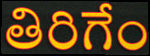
తిరిగేం